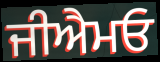
ਜੀਐਮਓ